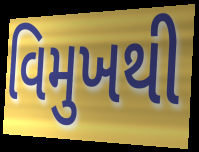
વિમુખથી